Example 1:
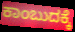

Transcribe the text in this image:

ಕಾಂಬುದಕ್ಕೆ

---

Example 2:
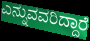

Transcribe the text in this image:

ಎನ್ನುವವರಿದ್ದಾರೆ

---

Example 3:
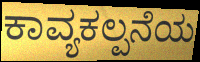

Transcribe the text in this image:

ಕಾವ್ಯಕಲ್ಪನೆಯ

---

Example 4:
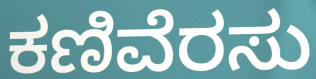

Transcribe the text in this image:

ಕಣಿವೆರಸು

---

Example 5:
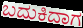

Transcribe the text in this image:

ಬದುಕಿದಾಗ